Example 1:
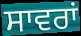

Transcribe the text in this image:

ਸਾਵਰਾਂ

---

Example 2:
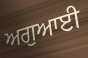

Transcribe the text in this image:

ਅਗੁਆਈ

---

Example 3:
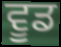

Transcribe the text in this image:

ਵੂਡ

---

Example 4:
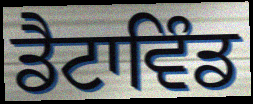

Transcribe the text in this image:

ਡੈਟਾਵਿੰਡ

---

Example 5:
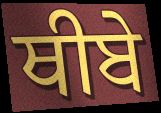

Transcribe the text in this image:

ਥੀਬੇ